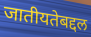
जातीयतेबद्दल